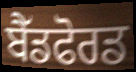
ਬੈੱਡਫੋਰਡ